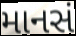
માનસં